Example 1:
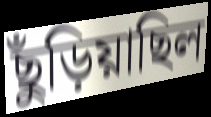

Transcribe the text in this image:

ছুঁড়িয়াছিল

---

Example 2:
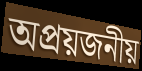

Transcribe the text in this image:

অপ্রয়জনীয়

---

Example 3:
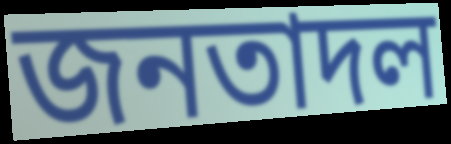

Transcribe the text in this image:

জনতাদল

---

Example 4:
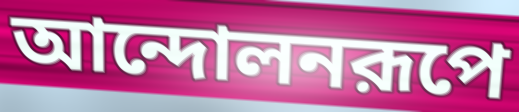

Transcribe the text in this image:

আন্দোলনরূপে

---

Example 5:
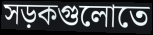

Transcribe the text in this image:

সড়কগুলোতে